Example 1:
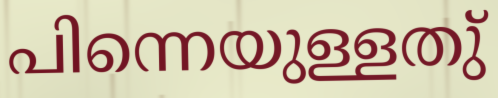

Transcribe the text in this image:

പിന്നെയുള്ളതു്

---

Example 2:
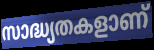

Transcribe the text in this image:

സാദ്ധ്യതകളാണ്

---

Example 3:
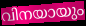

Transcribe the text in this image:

വിനയായും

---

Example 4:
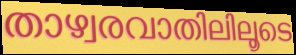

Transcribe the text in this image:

താഴ്വരവാതിലിലൂടെ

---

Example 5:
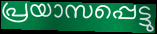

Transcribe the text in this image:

പ്രയാസപ്പെട്ടു